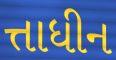
ત્તાધીન